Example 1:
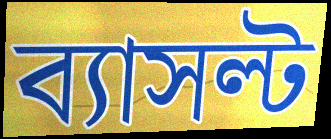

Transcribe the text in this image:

ব্যাসল্ট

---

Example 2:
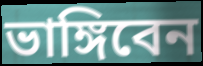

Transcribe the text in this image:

ভাঙ্গিবেন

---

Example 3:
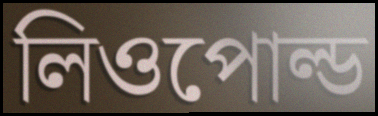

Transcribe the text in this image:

লিওপোল্ড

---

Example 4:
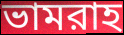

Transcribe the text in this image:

ভামরাহ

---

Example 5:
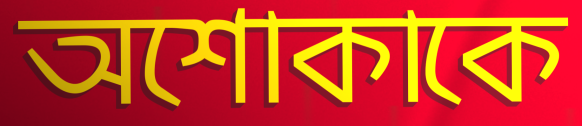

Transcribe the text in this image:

অশোকাকে